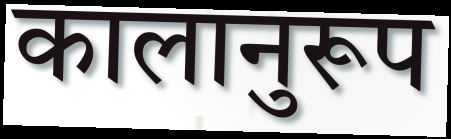
कालानुरूप